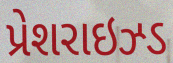
પ્રેશરાઇઝ્ડ